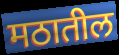
मठातील